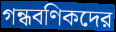
গন্ধবণিকদের